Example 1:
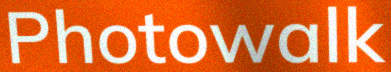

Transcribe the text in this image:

Photowalk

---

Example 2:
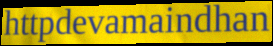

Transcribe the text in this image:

httpdevamaindhan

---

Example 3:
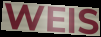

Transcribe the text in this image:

WEIS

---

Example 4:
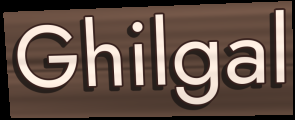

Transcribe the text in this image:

Ghilgal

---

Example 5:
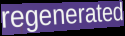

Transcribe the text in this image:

regenerated